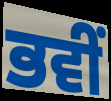
ਭਵੀਂ